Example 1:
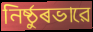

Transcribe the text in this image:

নিষ্ঠুৰভাৱে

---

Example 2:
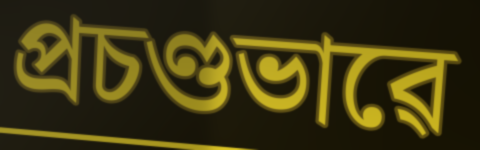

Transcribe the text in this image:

প্ৰচণ্ডভাৱে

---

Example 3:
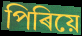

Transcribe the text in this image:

পিৰিয়ে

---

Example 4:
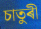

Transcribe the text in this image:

চাতুৰী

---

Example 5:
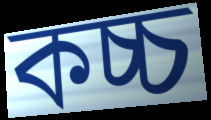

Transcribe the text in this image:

কচ্চ